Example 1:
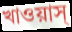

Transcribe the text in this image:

খাওয়াস্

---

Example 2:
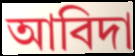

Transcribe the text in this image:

আবিদা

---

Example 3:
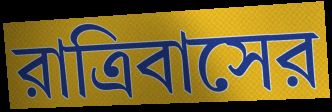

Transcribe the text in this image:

রাত্রিবাসের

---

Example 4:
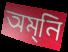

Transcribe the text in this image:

অম্‌নি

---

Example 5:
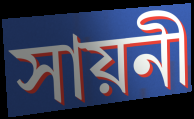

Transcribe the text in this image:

সায়নী